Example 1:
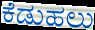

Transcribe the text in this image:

ಕೆಡುಹಲು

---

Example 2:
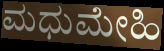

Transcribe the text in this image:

ಮಧುಮೇಹಿ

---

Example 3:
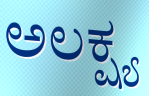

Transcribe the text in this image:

ಅಲಕ್ಷ್ಯ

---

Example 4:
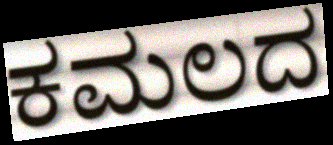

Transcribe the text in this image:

ಕಮಲದ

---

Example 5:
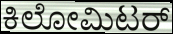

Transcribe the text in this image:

ಕಿಲೋಮಿಟರ್